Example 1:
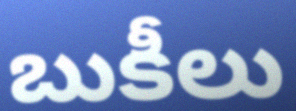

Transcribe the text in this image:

బుకీలు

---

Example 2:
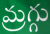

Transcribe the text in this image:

మ్రగ్గు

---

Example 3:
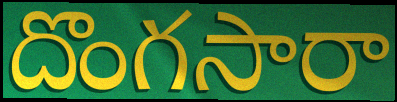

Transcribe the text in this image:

దొంగసారా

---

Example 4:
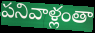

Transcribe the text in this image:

పనివాళ్లంతా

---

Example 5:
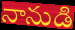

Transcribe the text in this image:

నానుడి